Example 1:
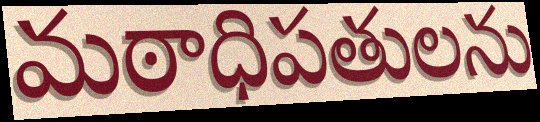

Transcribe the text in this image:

మఠాధిపతులను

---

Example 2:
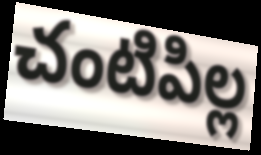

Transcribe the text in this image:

చంటిపిల్ల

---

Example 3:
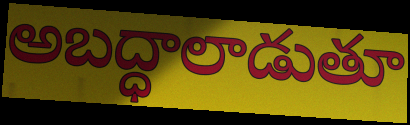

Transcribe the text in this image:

అబద్ధాలాడుతూ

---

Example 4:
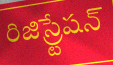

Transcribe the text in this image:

రిజిస్ర్టేషన్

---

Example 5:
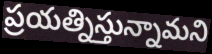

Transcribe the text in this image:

ప్రయత్నిస్తున్నామని